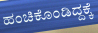
ಹಂಚಿಕೊಂಡಿದ್ದಕ್ಕೆ